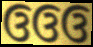
ઉઉઉ